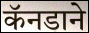
कॅनडाने